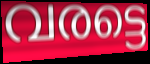
വരട്ടെ